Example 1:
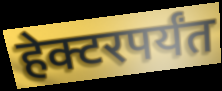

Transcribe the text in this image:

हेक्टरपर्यंत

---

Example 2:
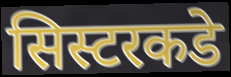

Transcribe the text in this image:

सिस्टरकडे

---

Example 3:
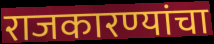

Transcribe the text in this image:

राजकारण्यांचा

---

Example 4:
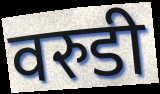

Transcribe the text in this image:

वरुडी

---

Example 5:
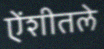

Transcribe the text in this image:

ऐंशीतले